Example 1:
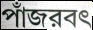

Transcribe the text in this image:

পাঁজরবৎ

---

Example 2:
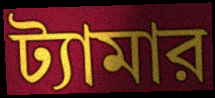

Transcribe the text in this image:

ট্যামার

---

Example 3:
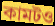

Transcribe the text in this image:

কামটও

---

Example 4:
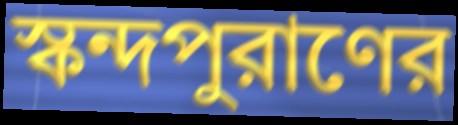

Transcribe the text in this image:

স্কন্দপুরাণের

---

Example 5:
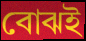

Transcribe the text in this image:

বোঝই